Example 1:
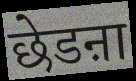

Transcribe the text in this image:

छेडऩा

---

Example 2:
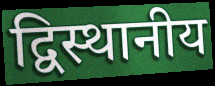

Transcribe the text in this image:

द्विस्थानीय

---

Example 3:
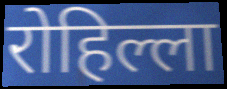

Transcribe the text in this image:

रोहिल्ला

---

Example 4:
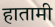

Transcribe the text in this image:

हातामी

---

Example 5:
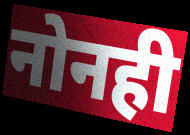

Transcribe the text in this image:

नोनही